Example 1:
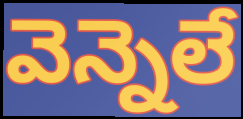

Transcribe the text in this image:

వెన్నెలే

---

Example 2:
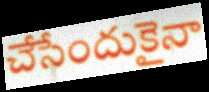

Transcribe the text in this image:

చేసేందుకైనా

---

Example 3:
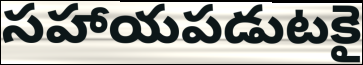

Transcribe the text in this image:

సహాయపడుటకై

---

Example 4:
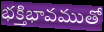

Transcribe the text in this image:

భక్తిభావముతో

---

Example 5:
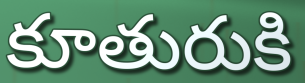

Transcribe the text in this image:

కూతురుకి